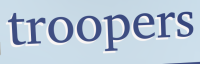
troopers